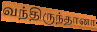
வந்திருந்தானா